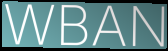
WBAN